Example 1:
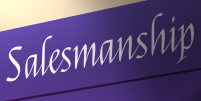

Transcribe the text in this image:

Salesmanship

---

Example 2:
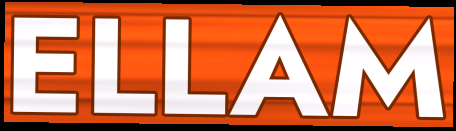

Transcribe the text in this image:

ELLAM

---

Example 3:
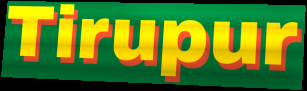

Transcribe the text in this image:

Tirupur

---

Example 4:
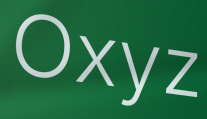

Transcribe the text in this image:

Oxyz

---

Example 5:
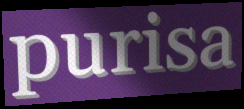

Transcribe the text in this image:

purisa